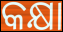
କକ୍ଷା